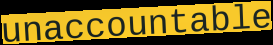
unaccountable